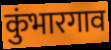
कुंभारगाव